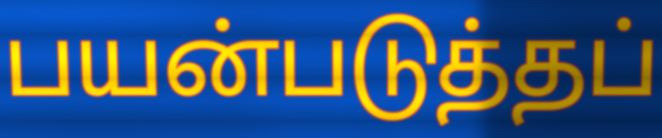
பயன்படுத்தப்